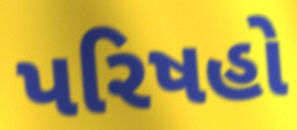
પરિષહો